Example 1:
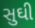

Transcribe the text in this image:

સુઘી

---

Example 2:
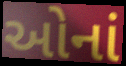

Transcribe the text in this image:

ઓનાં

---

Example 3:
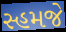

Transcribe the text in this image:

સ્હમજે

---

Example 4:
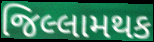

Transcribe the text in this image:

જિલ્લામથક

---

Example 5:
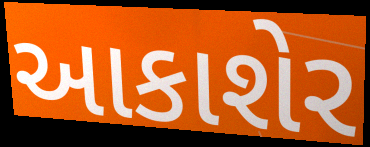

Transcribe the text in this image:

આકાશેર